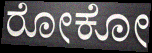
ರೋಕೋ